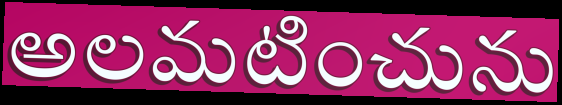
అలమటించును